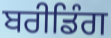
ਬਰੀਡਿੰਗ